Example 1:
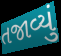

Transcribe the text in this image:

તજાવ્યું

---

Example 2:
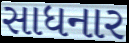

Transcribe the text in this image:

સાધનાર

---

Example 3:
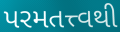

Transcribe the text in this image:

પરમતત્ત્વથી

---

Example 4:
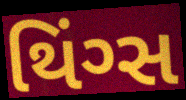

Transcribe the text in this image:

થિંગ્સ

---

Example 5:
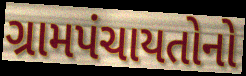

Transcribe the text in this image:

ગ્રામપંચાયતોનો